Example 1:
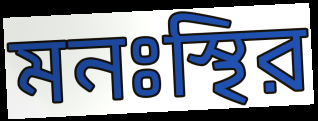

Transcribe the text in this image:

মনঃস্থির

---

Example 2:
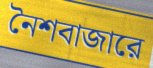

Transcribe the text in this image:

নৈশবাজারে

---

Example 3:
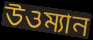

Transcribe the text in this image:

উওম্যান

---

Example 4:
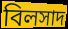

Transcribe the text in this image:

বিলসাদ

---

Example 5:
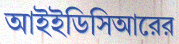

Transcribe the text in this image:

আইইডিসিআরের